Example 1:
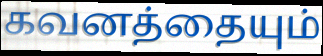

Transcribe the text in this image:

கவனத்தையும்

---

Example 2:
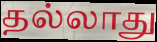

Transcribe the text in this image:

தல்லாது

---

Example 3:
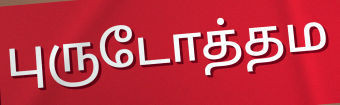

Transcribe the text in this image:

புருடோத்தம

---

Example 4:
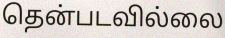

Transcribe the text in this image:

தென்படவில்லை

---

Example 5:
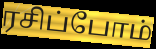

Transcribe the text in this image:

ரசிப்போம்